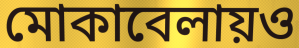
মোকাবেলায়ও